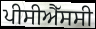
ਪੀਸੀਐੱਸਸੀ